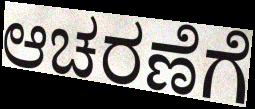
ಆಚರಣೆಗೆ